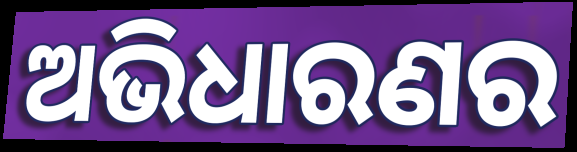
ଅଭିଧାରଣର